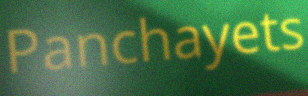
Panchayets